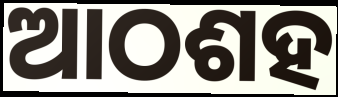
ଆଠଶହ